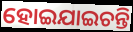
ହୋଇଯାଇଚନ୍ତି